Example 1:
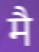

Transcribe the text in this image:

मै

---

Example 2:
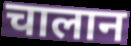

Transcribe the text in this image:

चालान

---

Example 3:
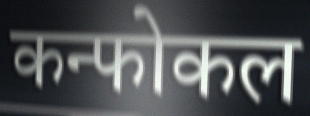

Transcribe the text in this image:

कन्फोकल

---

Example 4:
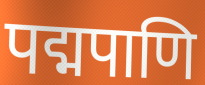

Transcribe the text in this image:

पद्मपाणि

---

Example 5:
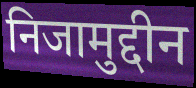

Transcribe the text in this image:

निजामुद्दीन